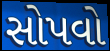
સોપવો